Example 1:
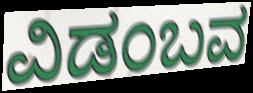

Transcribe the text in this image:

ವಿಡಂಬವ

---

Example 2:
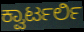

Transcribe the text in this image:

ಕ್ವಾರ್ಟರ್ಲಿ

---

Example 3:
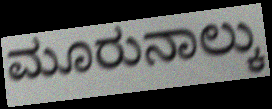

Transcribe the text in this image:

ಮೂರುನಾಲ್ಕು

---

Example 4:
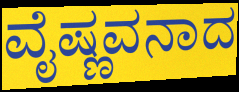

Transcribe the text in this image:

ವೈಷ್ಣವನಾದ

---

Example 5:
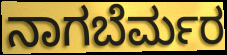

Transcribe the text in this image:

ನಾಗಬೆರ್ಮರ